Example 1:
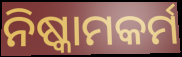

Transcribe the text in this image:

ନିଷ୍କାମକର୍ମ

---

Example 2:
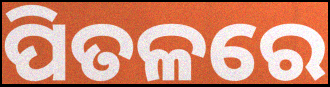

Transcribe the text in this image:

ପିତଳରେ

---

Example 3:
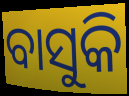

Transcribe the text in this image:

ବାସୁକି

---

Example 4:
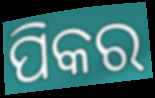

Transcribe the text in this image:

ପିକର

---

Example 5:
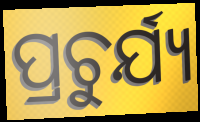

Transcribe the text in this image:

ପ୍ରଚୁର୍ଯ୍ୟ